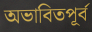
অভাবিতপূর্ব